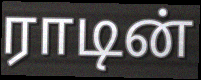
ராடின்